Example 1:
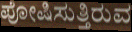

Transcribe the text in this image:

ಪೋಷಿಸುತ್ತಿರುವ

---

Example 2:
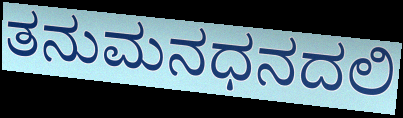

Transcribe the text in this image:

ತನುಮನಧನದಲಿ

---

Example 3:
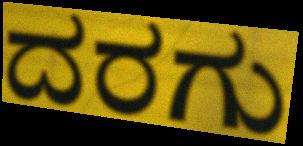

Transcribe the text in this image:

ದರಗು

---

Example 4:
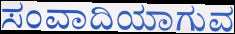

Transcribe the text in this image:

ಸಂವಾದಿಯಾಗುವ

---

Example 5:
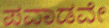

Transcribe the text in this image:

ಪವಾಡವೇ